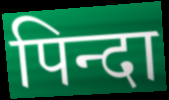
पिन्दा